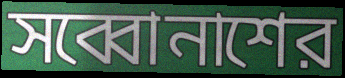
সব্বোনাশের